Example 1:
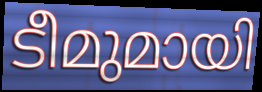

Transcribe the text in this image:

ടീമുമായി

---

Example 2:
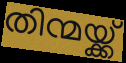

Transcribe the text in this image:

തിന്മയ്ക്ക്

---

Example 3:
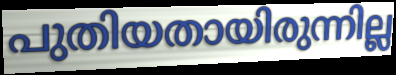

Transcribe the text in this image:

പുതിയതായിരുന്നില്ല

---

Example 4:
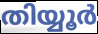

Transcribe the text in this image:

തിയ്യൂർ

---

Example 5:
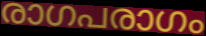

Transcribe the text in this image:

രാഗപരാഗം